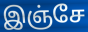
இஞ்சே